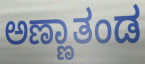
ಅಣ್ಣಾತಂಡ